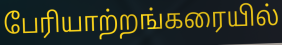
பேரியாற்றங்கரையில்